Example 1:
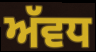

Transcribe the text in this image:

ਅੱਵਧ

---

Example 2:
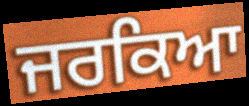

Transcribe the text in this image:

ਜਰਕਿਆ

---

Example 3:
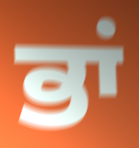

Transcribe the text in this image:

ਭਾਂ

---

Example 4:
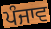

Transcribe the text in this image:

ਪੰਜਾਵ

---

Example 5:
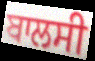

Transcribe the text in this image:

ਬਾਲਸੀ